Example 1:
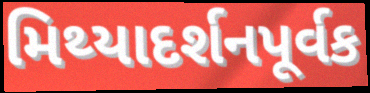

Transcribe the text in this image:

મિથ્યાદર્શનપૂર્વક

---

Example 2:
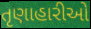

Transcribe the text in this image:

તૃણાહારીઓ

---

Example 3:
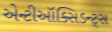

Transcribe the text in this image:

એન્ટીઑક્સિડન્ટ્સ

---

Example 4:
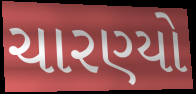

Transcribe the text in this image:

ચારણ્યો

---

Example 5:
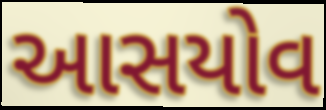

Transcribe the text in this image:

આસયોવ